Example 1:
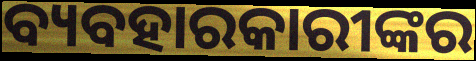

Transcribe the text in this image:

ବ୍ୟବହାରକାରୀଙ୍କର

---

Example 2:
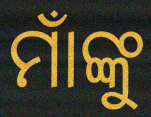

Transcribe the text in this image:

ମାଁଙ୍କୁ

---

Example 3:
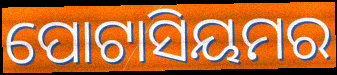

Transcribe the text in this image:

ପୋଟାସିୟମର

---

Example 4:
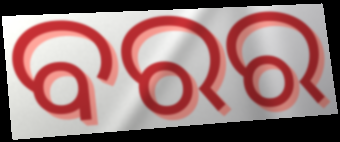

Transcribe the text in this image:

ବରର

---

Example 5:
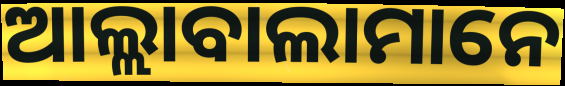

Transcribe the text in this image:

ଆଲ୍ଲାବାଲାମାନେ